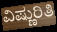
ವಿಷ್ಣುರಿತಿ